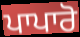
ਪਾਪਾਰੋ